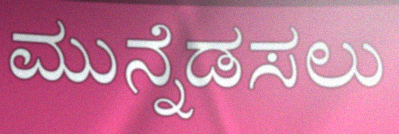
ಮುನ್ನೆಡಸಲು